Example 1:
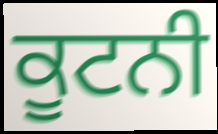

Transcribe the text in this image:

ਕੂਟਨੀ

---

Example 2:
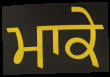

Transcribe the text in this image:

ਮਾਕੇ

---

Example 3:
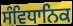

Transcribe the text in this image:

ਸੰਵਿਧਾਨਿਕ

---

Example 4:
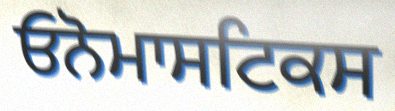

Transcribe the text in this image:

ਓਨੋਮਾਸਟਿਕਸ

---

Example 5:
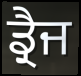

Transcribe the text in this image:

ਡ੍ਰੈਜ